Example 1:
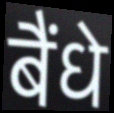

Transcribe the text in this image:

बैंधे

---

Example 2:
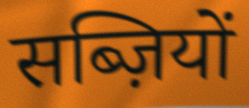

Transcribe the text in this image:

सब्ज़ियों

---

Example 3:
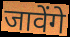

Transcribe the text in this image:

जावेंगे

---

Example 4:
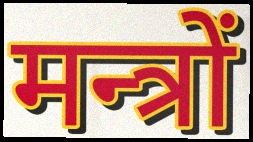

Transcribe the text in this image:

मन्त्रों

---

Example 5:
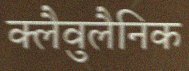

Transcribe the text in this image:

क्लैवुलैनिक